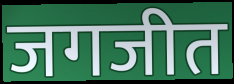
जगजीत